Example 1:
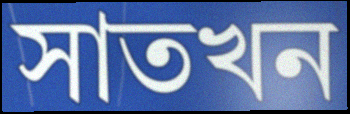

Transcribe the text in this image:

সাতখন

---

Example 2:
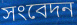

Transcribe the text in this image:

সংবেদন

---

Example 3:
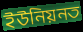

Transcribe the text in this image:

ইউনিয়নত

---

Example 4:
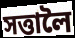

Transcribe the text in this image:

সত্তালৈ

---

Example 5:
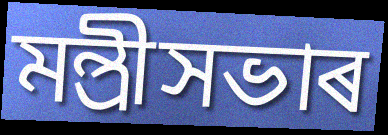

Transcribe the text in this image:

মন্ত্ৰীসভাৰ